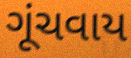
ગૂંચવાય